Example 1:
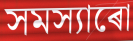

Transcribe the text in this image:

সমস্যাৰো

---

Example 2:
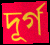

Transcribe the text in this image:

দূৰ্গ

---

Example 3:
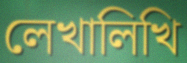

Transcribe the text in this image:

লেখালিখি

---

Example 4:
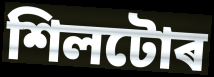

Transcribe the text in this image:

শিলটোৰ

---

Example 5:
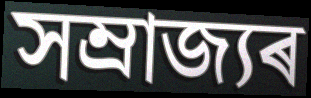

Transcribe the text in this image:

সম্ৰাজ্যৰ